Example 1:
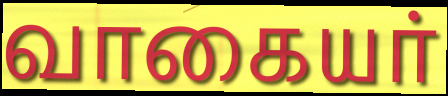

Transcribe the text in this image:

வாகையர்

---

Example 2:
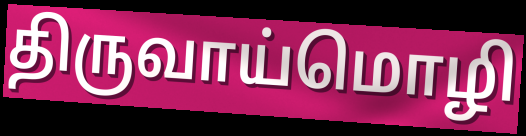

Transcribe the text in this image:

திருவாய்மொழி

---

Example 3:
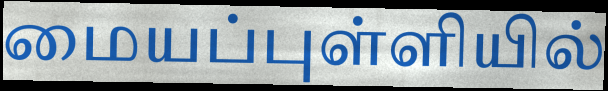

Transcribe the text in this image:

மையப்புள்ளியில்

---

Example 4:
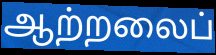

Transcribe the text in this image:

ஆற்றலைப்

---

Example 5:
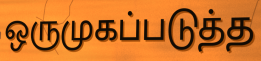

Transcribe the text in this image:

ஒருமுகப்படுத்த